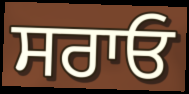
ਸਰਾਓ